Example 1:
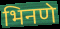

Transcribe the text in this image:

भिनणे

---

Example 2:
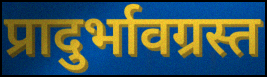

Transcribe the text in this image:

प्रादुर्भावग्रस्त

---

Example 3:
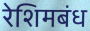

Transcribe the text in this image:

रेशिमबंध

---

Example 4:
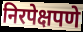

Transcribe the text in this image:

निरपेक्षपणे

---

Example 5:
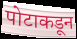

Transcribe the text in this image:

पोटाकडून